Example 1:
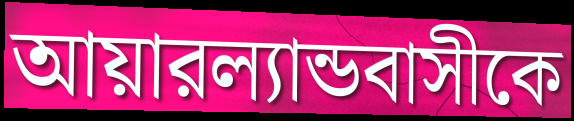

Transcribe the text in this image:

আয়ারল্যান্ডবাসীকে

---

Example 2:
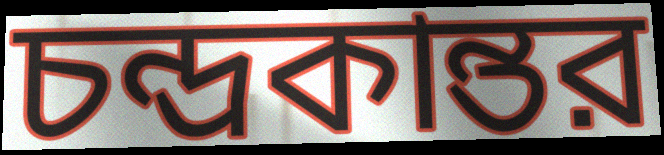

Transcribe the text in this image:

চন্দ্রকান্তর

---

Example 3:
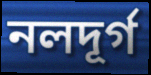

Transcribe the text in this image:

নলদূর্গ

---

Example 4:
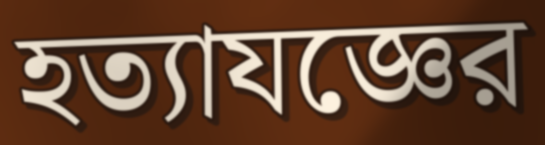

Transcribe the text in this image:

হত্যাযজ্ঞের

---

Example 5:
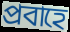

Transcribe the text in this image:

প্রবাহে